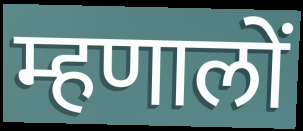
म्हणालों